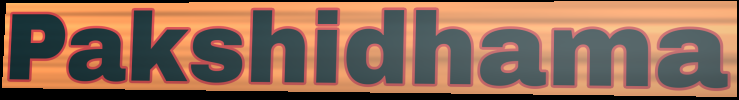
Pakshidhama